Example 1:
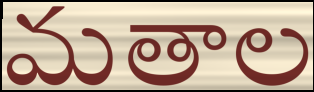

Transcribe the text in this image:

మతాల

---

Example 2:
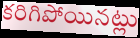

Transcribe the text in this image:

కరిగిపోయినట్లు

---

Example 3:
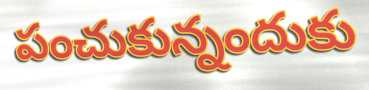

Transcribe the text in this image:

పంచుకున్నందుకు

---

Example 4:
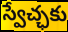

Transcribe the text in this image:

స్వేచ్ఛకు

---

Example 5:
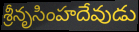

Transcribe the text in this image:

శ్రీనృసింహదేవుడు